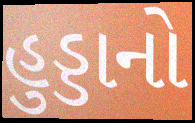
હુડ્ડાનો